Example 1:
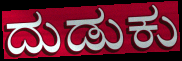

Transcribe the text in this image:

ದುಡುಕು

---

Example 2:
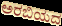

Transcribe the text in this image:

ಅರಬಿಯದ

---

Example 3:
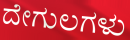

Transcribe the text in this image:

ದೇಗುಲಗಳು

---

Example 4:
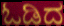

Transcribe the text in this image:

ಓಡಿದ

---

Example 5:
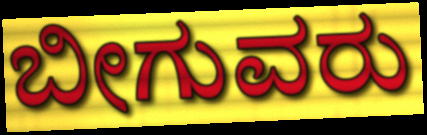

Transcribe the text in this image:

ಬೀಗುವರು